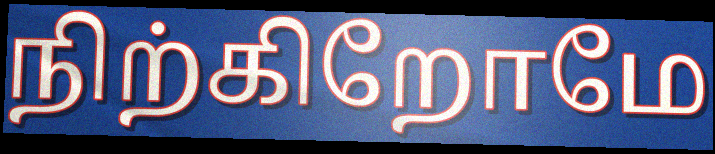
நிற்கிறோமே